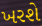
ખરશે